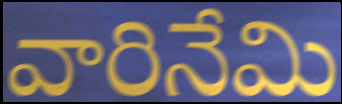
వారినేమి